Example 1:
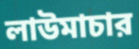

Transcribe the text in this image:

লাউমাচার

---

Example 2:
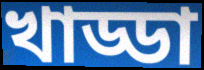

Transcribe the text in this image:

খাড্ডা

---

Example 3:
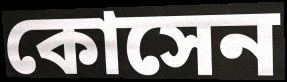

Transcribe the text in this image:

কোসেন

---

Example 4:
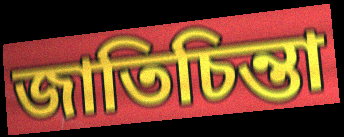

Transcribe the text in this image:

জাতিচিন্তা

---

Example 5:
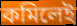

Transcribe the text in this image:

কমিলেই